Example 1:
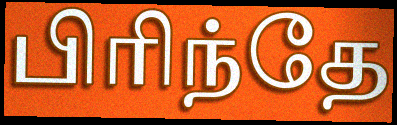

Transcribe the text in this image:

பிரிந்தே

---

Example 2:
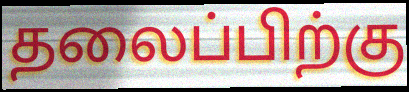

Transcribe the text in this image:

தலைப்பிற்கு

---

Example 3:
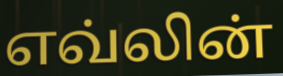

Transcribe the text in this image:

எவ்லின்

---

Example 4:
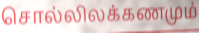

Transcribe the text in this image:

சொல்லிலக்கணமும்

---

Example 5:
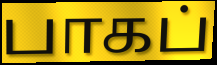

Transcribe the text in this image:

பாகப்